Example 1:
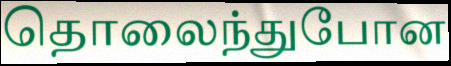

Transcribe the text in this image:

தொலைந்துபோன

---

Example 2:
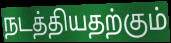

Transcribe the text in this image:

நடத்தியதற்கும்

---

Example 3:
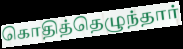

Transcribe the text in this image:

கொதித்தெழுந்தார்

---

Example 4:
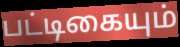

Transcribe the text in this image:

பட்டிகையும்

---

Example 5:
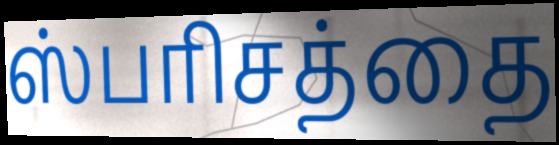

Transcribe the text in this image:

ஸ்பரிசத்தை